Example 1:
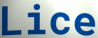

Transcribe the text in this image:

Lice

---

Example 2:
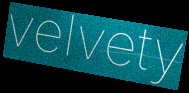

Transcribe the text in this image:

velvety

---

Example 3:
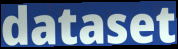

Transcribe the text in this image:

dataset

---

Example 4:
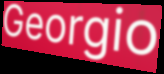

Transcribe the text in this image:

Georgio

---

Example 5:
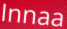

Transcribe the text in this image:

Innaa